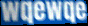
wqewqe